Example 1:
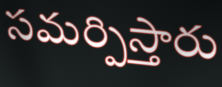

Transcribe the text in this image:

సమర్పిస్తారు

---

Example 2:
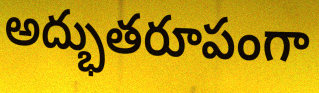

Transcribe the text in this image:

అద్భుతరూపంగా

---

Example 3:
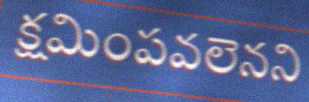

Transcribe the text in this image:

క్షమింపవలెనని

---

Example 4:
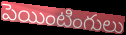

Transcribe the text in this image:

పెయింటింగులు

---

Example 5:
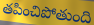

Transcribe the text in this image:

తపించిపోతుంది